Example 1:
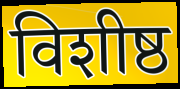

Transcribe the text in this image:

विशीष्ठ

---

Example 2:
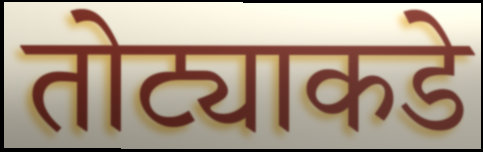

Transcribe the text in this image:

तोट्याकडे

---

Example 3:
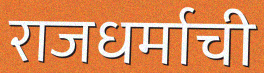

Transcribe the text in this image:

राजधर्माची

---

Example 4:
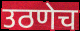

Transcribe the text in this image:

उठणेच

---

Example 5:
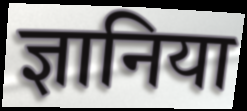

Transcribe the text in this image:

ज्ञानिया